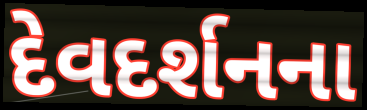
દેવદર્શનના